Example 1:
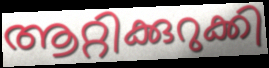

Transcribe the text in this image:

ആറ്റിക്കുറുക്കി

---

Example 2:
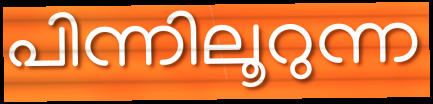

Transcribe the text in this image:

പിന്നിലൂറുന്ന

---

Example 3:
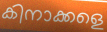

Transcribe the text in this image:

കിനാക്കളെ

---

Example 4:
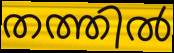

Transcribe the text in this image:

തത്തിൽ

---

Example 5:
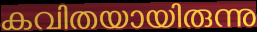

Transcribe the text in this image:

കവിതയായിരുന്നു